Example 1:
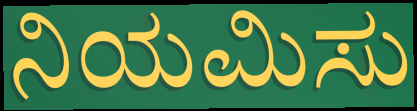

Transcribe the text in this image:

ನಿಯಮಿಸು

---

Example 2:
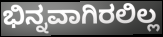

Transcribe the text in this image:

ಭಿನ್ನವಾಗಿರಲಿಲ್ಲ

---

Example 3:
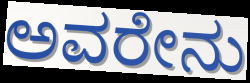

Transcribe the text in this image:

ಅವರೇನು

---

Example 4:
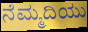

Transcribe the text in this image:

ನೆಮ್ಮದಿಯು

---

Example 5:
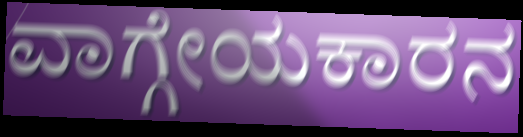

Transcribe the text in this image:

ವಾಗ್ಗೇಯಕಾರನ